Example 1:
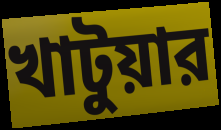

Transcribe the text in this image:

খাটুয়ার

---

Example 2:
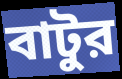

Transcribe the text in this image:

বাটুর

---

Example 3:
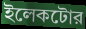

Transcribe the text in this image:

ইলেকটোর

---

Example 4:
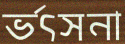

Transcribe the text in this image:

র্ভৎসনা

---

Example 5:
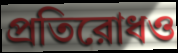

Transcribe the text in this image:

প্রতিরোধও